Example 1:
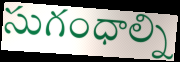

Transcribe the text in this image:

సుగంధాల్ని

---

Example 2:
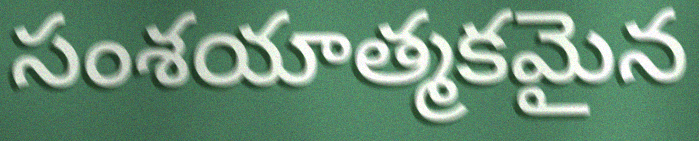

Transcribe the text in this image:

సంశయాత్మకమైన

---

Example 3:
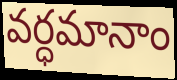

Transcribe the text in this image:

వర్ధమానాం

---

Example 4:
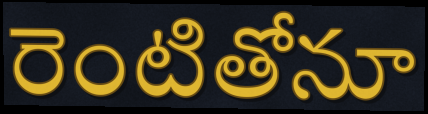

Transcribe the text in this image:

రెంటితోనూ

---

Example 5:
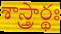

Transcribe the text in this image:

శాస్త్రార్థః